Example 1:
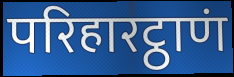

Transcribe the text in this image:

परिहारट्ठाणं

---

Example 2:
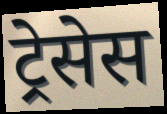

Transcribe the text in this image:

ट्रेसेस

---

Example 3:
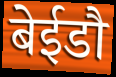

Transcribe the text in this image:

बेईडौ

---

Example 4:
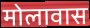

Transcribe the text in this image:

मोलावास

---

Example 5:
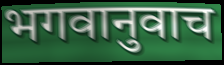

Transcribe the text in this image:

भगवानुवाच